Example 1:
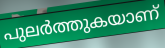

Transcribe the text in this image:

പുലർത്തുകയാണ്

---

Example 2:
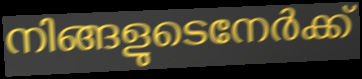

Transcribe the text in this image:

നിങ്ങളുടെനേർക്ക്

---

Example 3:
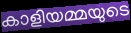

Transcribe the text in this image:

കാളിയമ്മയുടെ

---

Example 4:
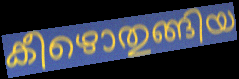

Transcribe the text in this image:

കീഴൊതുങ്ങിയ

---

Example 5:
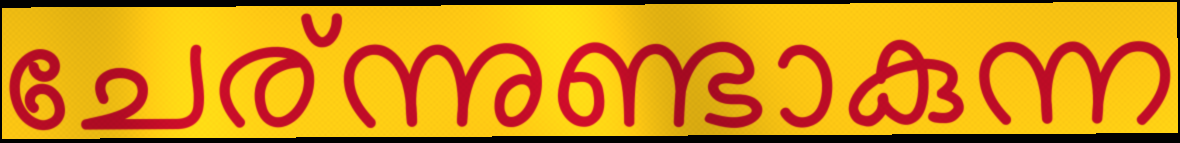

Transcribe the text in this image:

ചേര്ന്നുണ്ടാകുന്ന